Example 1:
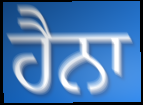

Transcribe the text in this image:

ਹੈਨਾ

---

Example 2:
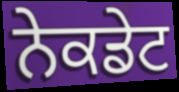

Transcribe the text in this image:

ਨੇਕਡੇਟ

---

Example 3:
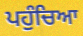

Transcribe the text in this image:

ਪਹੁੰਚਿਆ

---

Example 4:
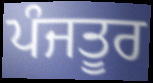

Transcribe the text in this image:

ਪੰਜਤੂਰ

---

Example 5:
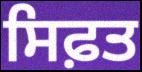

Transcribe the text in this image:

ਸਿਫ਼ਤ